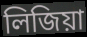
লিজিয়া